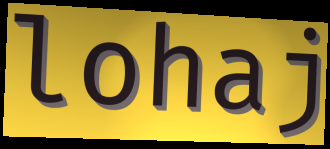
lohaj